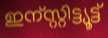
ഇന്സ്റ്റിട്ട്യൂട്ട്